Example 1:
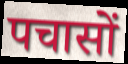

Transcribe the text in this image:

पचासों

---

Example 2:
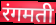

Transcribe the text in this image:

रंगमती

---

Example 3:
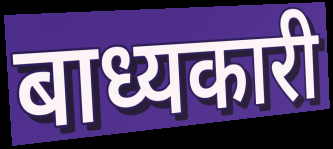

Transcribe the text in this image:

बाध्यकारी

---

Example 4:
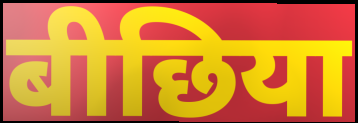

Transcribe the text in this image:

बीछिया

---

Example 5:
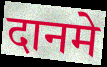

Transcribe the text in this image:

दानमे